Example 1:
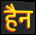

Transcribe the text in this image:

हैन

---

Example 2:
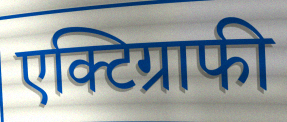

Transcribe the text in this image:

एक्टिग्राफी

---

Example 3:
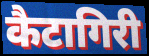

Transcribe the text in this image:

कैटागिरी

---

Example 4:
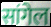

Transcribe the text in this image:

सांगेल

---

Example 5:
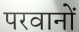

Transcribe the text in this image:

परवानों